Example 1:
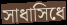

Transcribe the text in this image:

সাধাসিধে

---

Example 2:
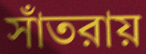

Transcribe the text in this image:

সাঁতরায়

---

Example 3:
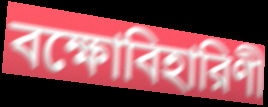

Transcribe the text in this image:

বক্ষোবিহারিণী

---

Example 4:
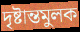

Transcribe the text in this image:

দৃষ্টান্তমুলক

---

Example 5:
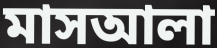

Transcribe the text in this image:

মাসআলা